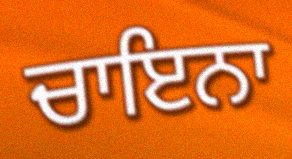
ਚਾਇਨਾ